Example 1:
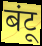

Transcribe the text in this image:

बंटू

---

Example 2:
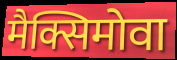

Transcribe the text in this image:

मैक्सिमोवा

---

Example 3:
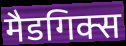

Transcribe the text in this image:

मैडगिक्स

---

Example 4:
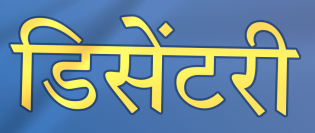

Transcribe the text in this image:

डिसेंटरी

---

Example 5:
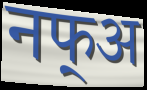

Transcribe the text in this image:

नफ्अ